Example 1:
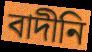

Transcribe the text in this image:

বাদীনি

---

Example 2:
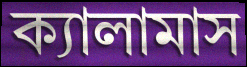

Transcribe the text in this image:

ক্যালামাস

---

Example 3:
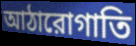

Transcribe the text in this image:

আঠারোগাতি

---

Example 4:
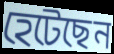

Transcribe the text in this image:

হেটেছেন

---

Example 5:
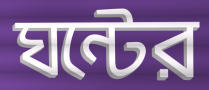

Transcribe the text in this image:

ঘন্টের